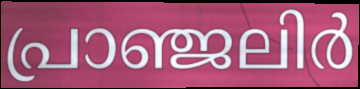
പ്രാഞ്ജലിർ